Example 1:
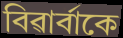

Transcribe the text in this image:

বিৱাৰ্বাকে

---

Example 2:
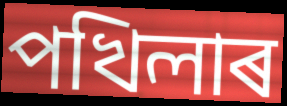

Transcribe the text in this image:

পখিলাৰ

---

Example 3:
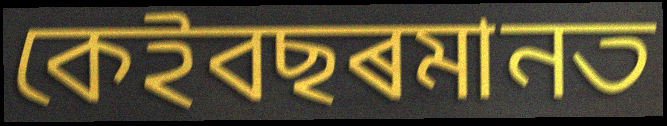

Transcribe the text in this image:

কেইবছৰমানত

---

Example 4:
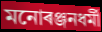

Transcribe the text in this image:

মনোৰঞ্জনধৰ্মী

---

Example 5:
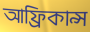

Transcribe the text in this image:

আফ্ৰিকান্স